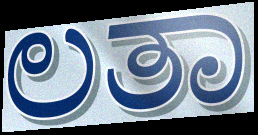
ಲತಾ